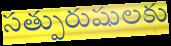
సత్పురుషులకు